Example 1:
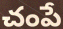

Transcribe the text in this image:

చంపే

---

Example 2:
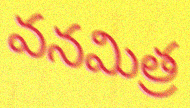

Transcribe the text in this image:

వనమిత్ర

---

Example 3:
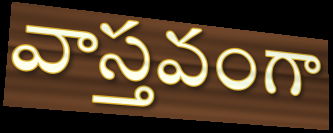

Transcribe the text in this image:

వాస్తవంగా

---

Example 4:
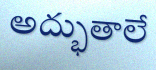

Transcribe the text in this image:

అద్భుతాలే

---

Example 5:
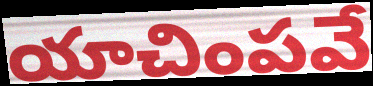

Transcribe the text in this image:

యాచింపవే